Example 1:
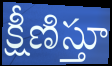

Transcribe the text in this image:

క్షీణిస్తూ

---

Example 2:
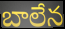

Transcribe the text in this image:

బాలేన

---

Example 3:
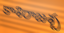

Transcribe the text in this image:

కాశిరాజశ్చ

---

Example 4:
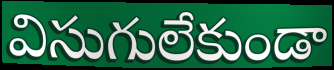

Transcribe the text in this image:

విసుగులేకుండా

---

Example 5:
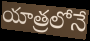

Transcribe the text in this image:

యాత్రలోనే